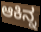
ಆಕಿನ್ನ